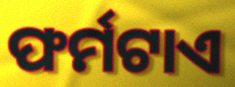
ଫର୍ମଟାଏ